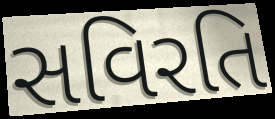
સવિરતિ